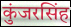
कुंजरसिंह